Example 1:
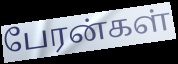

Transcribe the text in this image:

பேரன்கள்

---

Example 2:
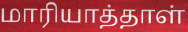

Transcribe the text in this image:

மாரியாத்தாள்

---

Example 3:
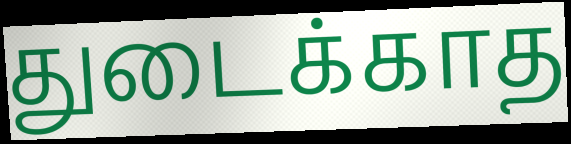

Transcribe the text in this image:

துடைக்காத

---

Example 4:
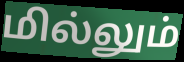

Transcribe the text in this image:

மில்லும்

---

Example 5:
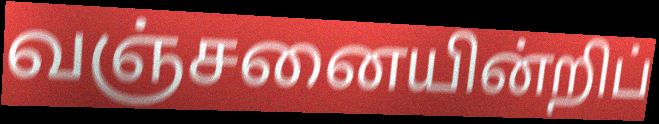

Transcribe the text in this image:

வஞ்சனையின்றிப்